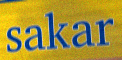
sakar